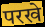
परखे